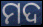
ମଦ